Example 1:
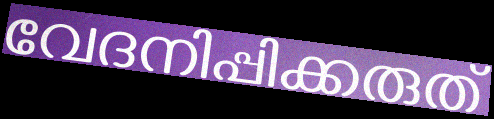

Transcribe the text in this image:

വേദനിപ്പിക്കരുത്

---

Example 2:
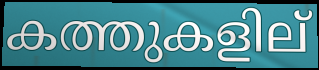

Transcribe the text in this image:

കത്തുകളില്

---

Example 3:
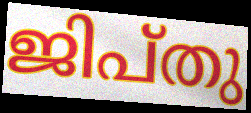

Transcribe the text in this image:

ജിപ്തു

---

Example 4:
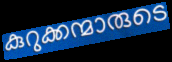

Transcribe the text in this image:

കുറുക്കന്മാരുടെ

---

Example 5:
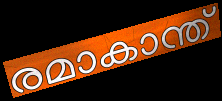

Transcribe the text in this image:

രമാകാന്ത്